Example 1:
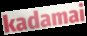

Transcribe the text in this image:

kadamai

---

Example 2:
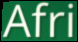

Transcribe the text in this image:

Afri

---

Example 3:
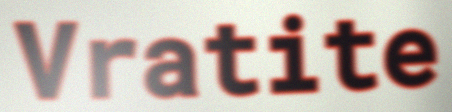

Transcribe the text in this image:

Vratite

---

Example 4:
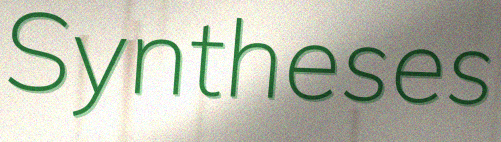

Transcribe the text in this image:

Syntheses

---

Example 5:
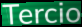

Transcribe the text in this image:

Tercio